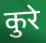
कुरे